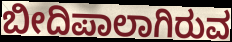
ಬೀದಿಪಾಲಾಗಿರುವ